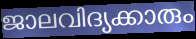
ജാലവിദ്യക്കാരും